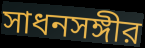
সাধনসঙ্গীর